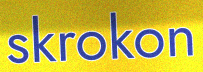
skrokon